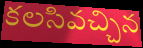
కలసివచ్చిన